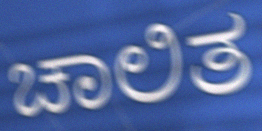
ಚಾಲಿತ